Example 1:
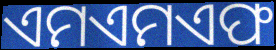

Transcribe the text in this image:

ଏମଏମଏଫ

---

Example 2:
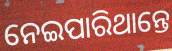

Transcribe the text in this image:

ନେଇପାରିଥାନ୍ତେ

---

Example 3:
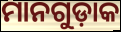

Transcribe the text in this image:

ମାନଗୁଡ଼ାକ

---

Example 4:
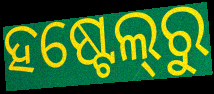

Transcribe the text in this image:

ହଷ୍ଟେଲ୍‍ରୁ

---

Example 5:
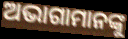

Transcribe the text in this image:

ଅଭାଗାମାନଙ୍କୁ